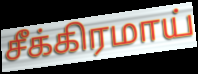
சீக்கிரமாய்